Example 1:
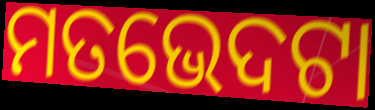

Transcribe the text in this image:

ମତଭେଦଟା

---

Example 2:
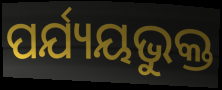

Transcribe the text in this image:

ପର୍ଯ୍ୟୟଭୁକ୍ତ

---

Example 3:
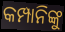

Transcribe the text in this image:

କମ୍ପାନିଙ୍କୁ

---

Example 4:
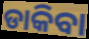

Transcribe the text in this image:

ଡାକିବା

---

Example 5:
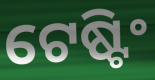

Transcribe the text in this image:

ଟେଷ୍ଟିଂ